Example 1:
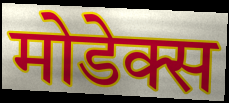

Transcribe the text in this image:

मोडेक्स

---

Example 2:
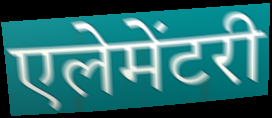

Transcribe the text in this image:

एलेमेंटरी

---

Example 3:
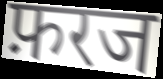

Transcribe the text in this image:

फ़रज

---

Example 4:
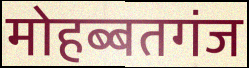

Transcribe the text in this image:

मोहब्बतगंज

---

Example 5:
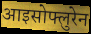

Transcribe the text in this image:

आइसोफ्लुरेन